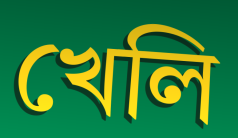
খেলি